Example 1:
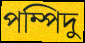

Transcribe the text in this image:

পম্পিদু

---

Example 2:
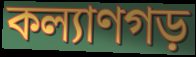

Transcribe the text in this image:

কল্যাণগড়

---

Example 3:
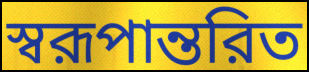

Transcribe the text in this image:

স্বরূপান্তরিত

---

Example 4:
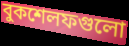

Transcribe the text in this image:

বুকশেলফগুলো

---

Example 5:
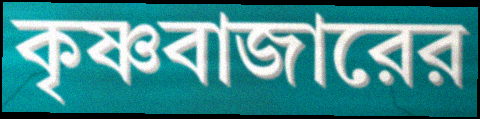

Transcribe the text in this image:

কৃষ্ণবাজারের